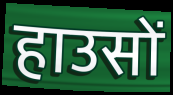
हाउसों